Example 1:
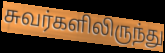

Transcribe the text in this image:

சுவர்களிலிருந்து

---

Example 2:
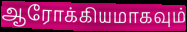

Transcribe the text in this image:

ஆரோக்கியமாகவும்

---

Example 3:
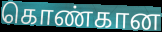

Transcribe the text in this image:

கொண்கான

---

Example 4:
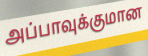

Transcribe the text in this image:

அப்பாவுக்குமான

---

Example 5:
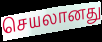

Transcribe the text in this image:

செயலானது